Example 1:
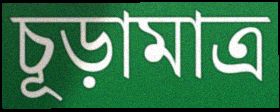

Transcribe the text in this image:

চূড়ামাত্র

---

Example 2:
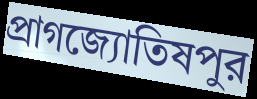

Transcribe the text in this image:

প্রাগজ্যোতিষপুর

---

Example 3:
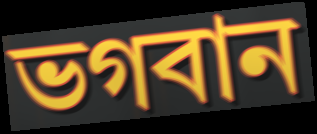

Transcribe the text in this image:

ভগবান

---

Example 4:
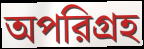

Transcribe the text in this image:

অপরিগ্রহ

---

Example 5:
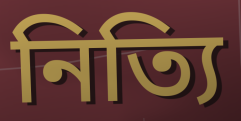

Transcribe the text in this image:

নিত্যি